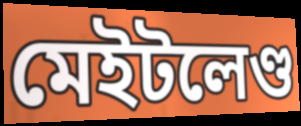
মেইটলেণ্ড